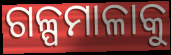
ଗଳ୍ପମାଳାକୁ